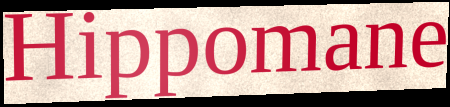
Hippomane